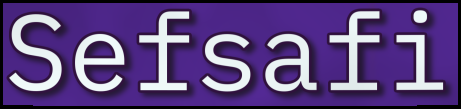
Sefsafi